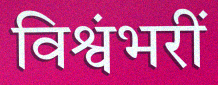
विश्वंभरीं